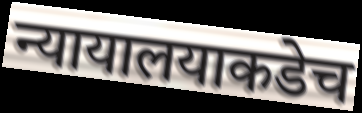
न्यायालयाकडेच